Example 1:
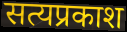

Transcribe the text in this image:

सत्यप्रकाश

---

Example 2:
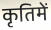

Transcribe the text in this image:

कृतिमें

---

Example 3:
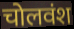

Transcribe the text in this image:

चोलवंश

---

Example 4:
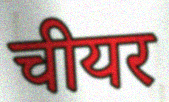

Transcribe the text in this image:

चीयर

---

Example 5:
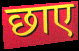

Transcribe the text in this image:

छाए